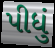
પીધું